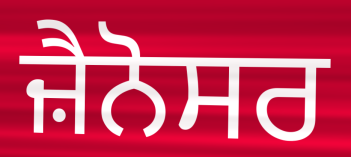
ਜ਼ੈਨੋਸਰ